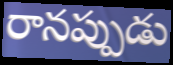
రానప్పుడు